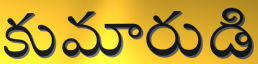
కుమారుడి